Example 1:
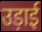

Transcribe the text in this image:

उड़ाई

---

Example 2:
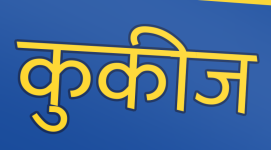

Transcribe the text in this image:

कुकीज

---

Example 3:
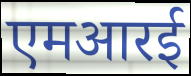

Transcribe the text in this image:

एमआरई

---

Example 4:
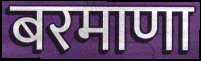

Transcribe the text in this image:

बरमाणा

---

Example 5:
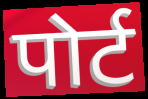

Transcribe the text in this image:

पोर्ट